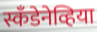
स्कॅंडेनेव्हिया